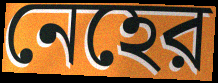
নেহের